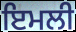
ਇਮਲੀ